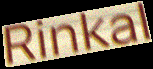
Rinkal